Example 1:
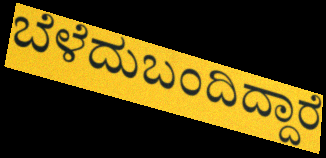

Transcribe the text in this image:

ಬೆಳೆದುಬಂದಿದ್ದಾರೆ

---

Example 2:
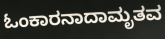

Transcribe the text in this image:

ಓಂಕಾರನಾದಾಮೃತವ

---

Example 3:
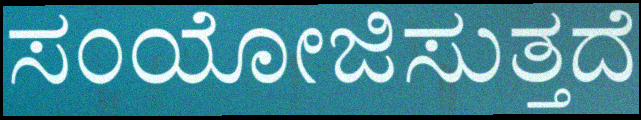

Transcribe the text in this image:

ಸಂಯೋಜಿಸುತ್ತದೆ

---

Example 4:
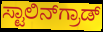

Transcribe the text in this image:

ಸ್ಟಾಲಿನ್‌ಗ್ರಾಡ್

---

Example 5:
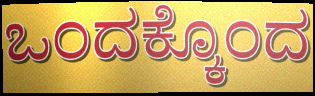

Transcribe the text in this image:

ಒಂದಕ್ಕೊಂದ